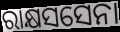
ରାକ୍ଷସସେନା